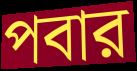
পবার